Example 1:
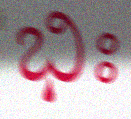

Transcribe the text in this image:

ಭಿಃ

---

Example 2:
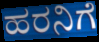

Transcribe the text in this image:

ಹರನಿಗೆ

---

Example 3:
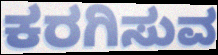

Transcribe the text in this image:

ಕರಗಿಸುವ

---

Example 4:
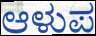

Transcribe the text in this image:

ಆಳುಪ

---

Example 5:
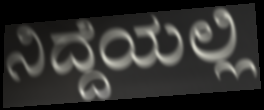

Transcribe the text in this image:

ನಿದ್ದೆಯಲ್ಲಿ